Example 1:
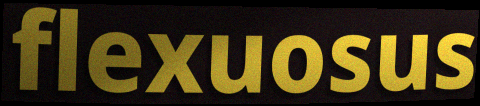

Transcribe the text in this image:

flexuosus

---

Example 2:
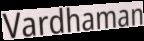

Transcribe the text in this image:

Vardhaman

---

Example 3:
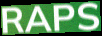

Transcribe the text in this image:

RAPS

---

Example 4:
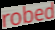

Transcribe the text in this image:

robed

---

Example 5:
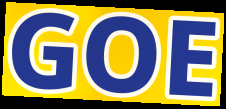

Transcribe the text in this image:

GOE